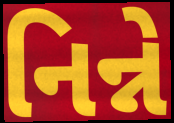
નિન્ને